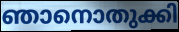
ഞാനൊതുക്കി